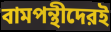
বামপন্থীদেরই